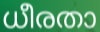
ധീരതാ